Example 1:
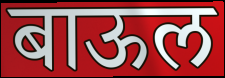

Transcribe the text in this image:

बाऊल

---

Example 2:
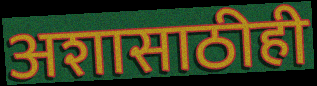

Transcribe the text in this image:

अशासाठीही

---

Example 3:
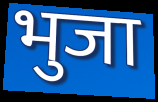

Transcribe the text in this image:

भुजा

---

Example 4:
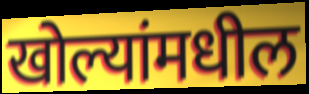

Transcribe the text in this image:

खोल्यांमधील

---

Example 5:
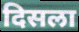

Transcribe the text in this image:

दिसला